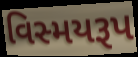
વિસ્મયરૂપ